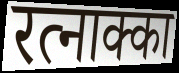
रत्नाक्का